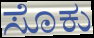
ಸೊಕು